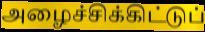
அழைச்சிக்கிட்டுப்